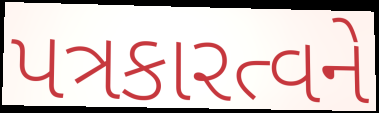
પત્રકારત્વને